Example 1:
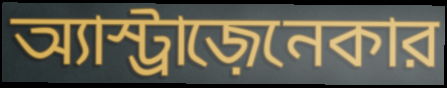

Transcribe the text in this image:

অ্যাস্ট্রাজ়েনেকার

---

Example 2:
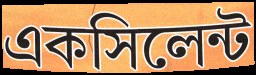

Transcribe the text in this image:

একসিলেন্ট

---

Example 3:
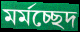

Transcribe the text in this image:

মর্মচ্ছেদ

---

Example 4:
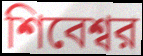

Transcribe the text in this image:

শিবেশ্বর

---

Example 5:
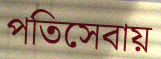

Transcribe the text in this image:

পতিসেবায়